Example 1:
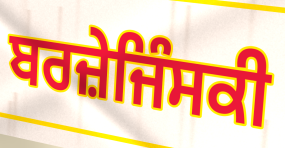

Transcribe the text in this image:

ਬਰਜ਼ੇਜਿੰਸਕੀ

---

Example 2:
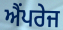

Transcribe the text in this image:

ਐਂਪਰੇਜ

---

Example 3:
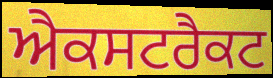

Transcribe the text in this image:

ਐਕਸਟਰੈਕਟ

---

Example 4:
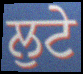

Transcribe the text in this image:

ਲੁਟੇ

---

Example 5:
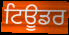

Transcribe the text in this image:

ਟਿਊਡਰ